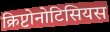
क्रिप्टोनोटिसियस